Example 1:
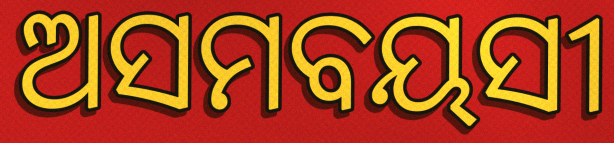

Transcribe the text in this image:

ଅସମବୟସୀ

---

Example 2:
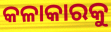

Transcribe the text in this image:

କଳାକାରକୁ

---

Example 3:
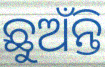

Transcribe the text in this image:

ଛୁଅଁନ୍ତି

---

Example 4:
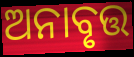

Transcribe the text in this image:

ଅନାବୃତ୍ତ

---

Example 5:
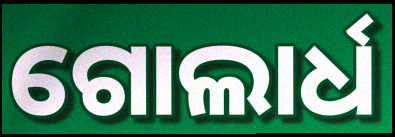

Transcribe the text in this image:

ଗୋଲାର୍ଧ